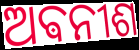
ଅଵନୀଶ